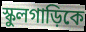
স্কুলগাড়িকে